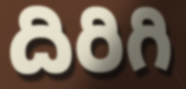
దిరిగి